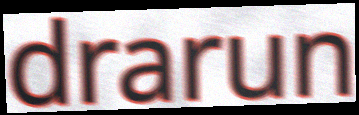
drarun